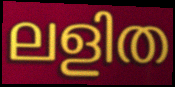
ലളിത